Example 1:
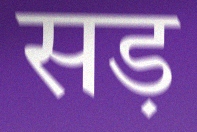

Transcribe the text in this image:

सड़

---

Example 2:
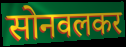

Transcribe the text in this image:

सोनवलकर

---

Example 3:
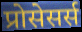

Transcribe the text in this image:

प्रोसेसर्स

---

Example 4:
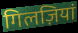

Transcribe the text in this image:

गिलज़ियां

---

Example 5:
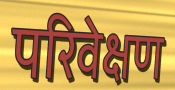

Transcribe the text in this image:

परिवेक्षण